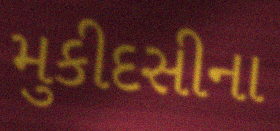
મુકીદસીના